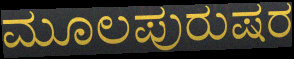
ಮೂಲಪುರುಷರ